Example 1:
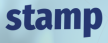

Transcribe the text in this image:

stamp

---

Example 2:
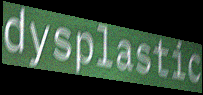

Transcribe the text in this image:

dysplastic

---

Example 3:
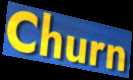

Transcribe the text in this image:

Churn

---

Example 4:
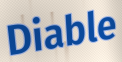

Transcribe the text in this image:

Diable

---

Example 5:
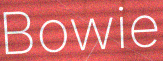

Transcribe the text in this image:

Bowie